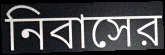
নিবাসের